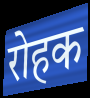
रोहक